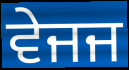
ਵੇਜਜ